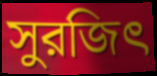
সুরজিৎ